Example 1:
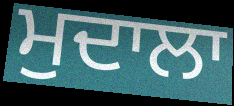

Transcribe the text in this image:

ਮੁਦਾਲਾ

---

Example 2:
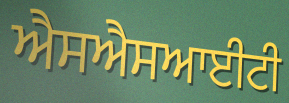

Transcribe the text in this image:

ਐਸਐਸਆਈਟੀ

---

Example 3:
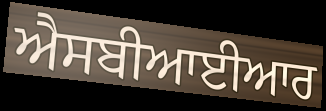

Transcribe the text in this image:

ਐਸਬੀਆਈਆਰ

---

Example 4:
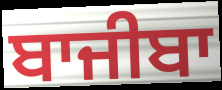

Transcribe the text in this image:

ਬਾਜੀਬਾ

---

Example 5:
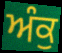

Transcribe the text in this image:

ਅੰਕੁ